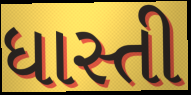
ધાસ્તી